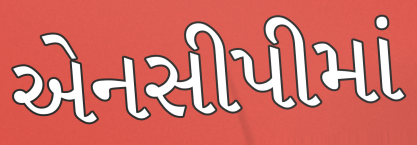
એનસીપીમાં